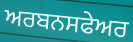
ਅਰਬਨਸਫੇਅਰ